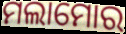
ମଲାମୋର